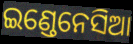
ଇଣ୍ଡେନେସିଆ